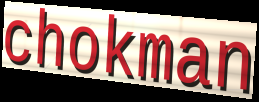
chokman